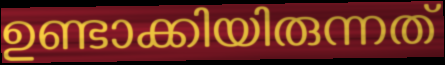
ഉണ്ടാക്കിയിരുന്നത്